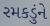
રમકડુંને